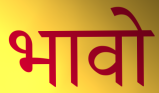
भावो